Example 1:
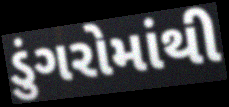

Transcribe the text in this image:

ડુંગરોમાંથી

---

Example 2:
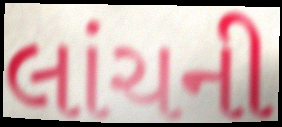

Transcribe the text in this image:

લાંચની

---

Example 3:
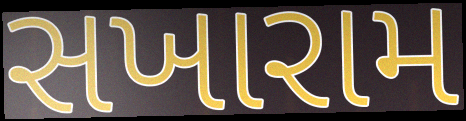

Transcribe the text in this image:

સખારામ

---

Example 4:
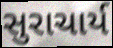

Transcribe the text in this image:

સુરાચાર્ય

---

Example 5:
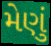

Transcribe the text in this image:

મેણું